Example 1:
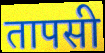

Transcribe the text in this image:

तापसी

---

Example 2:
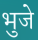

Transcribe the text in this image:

भुजे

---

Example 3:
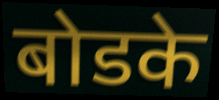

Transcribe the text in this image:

बोडके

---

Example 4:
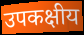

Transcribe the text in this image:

उपकक्षीय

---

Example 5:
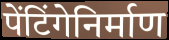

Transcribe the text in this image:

पेंटिंगेनिर्माण